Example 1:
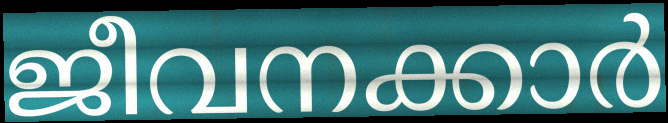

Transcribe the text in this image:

ജീവനക്കാർ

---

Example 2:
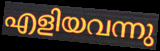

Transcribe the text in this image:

എളിയവന്നു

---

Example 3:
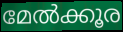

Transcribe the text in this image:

മേൽക്കൂര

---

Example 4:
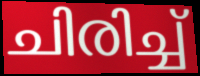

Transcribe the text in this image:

ചിരിച്ച്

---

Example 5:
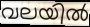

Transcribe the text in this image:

വലയിൽ